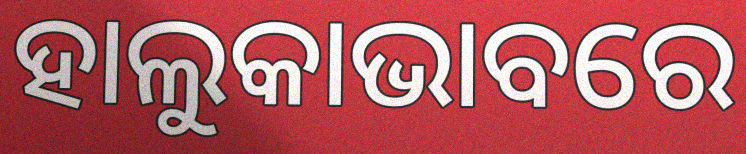
ହାଲୁକାଭାବରେ